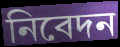
নিবেদন